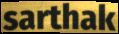
sarthak